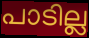
പാടില്ല